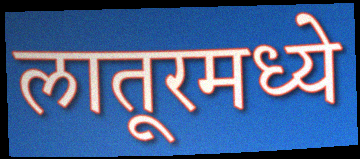
लातूरमध्ये